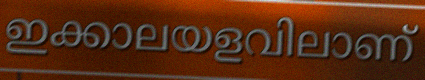
ഇക്കാലയളവിലാണ്